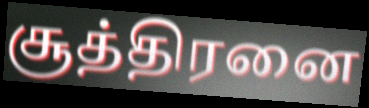
சூத்திரனை